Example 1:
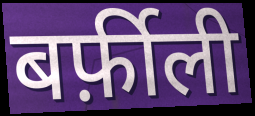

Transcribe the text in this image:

बर्फ़ीली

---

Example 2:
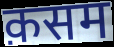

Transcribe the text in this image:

क़सम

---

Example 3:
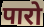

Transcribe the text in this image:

पारो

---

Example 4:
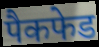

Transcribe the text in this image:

पैकफेड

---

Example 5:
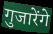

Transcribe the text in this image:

गुजारेंगे